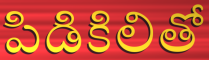
పిడికిలితో